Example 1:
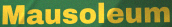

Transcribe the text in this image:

Mausoleum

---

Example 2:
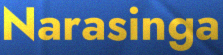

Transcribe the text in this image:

Narasinga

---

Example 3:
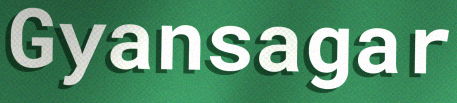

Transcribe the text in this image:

Gyansagar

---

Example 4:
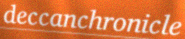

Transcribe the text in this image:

deccanchronicle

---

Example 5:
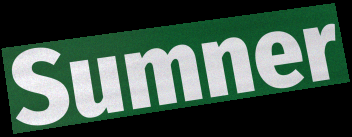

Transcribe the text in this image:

Sumner